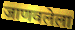
जाणवलेला